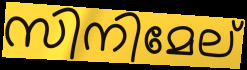
സിനിമേല്